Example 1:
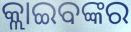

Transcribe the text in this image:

କ୍ଲାଇବଙ୍କର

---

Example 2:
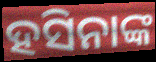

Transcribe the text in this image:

ହସିନାଙ୍କ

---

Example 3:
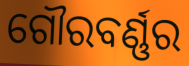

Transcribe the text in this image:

ଗୌରବର୍ଣ୍ଣର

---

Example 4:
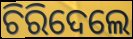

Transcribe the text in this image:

ଚିରିଦେଲେ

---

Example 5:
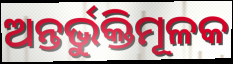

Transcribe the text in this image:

ଅନ୍ତର୍ଭୁକ୍ତିମୂଳକ